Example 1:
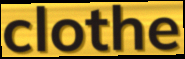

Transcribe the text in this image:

clothe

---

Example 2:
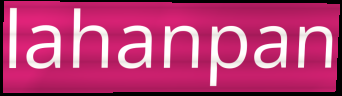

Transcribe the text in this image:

lahanpan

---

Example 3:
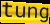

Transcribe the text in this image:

tung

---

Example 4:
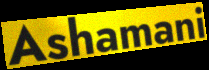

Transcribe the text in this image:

Ashamani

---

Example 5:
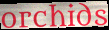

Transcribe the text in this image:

orchids